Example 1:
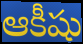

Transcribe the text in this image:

ఆకీషు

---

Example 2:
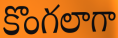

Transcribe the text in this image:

కొంగలాగా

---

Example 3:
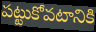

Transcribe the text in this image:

పట్టుకోవటానికి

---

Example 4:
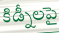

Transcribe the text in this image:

కిడ్నీలపై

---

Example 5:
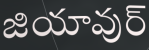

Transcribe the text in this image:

జియావుర్